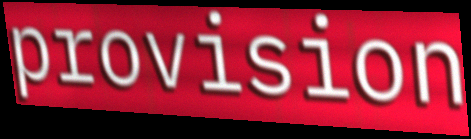
provision